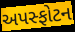
અપસ્ફોટન